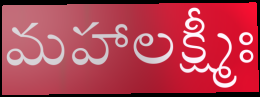
మహాలక్ష్మీః